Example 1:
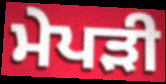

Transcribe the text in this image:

ਮੇਪੜੀ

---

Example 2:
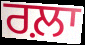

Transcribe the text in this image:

ਰਲ਼ਾ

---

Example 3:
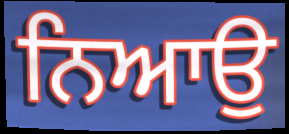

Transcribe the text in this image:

ਨਿਆਉ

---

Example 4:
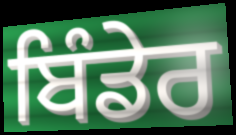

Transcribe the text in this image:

ਬਿੰਡੇਰ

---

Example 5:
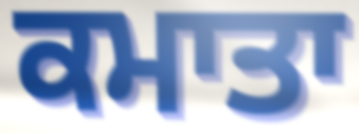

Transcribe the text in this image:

ਕਮਾਤਾ